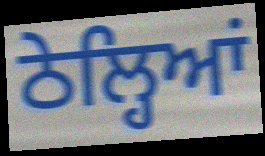
ਠੇਲ੍ਹਿਆਂ